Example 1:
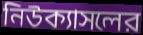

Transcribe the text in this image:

নিউক্যাসলের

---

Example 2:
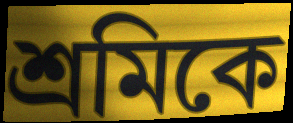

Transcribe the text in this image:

শ্রমিকে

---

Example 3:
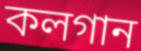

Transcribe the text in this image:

কলগান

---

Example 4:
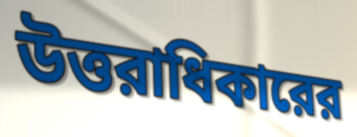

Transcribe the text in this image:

উত্তরাধিকারের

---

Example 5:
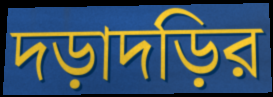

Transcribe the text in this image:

দড়াদড়ির